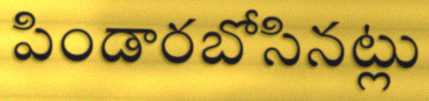
పిండారబోసినట్లు